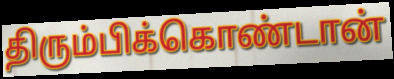
திரும்பிக்கொண்டான்